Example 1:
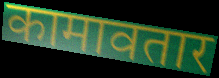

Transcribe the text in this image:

कामावतार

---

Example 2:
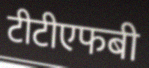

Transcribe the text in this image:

टीटीएफबी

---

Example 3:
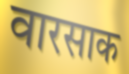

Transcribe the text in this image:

वारसाक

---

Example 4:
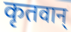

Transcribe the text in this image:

कृतवान्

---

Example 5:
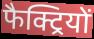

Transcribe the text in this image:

फैक्ट्रियों